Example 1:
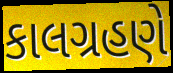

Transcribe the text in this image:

કાલગ્રહણે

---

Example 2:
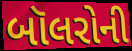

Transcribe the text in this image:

બૉલરોની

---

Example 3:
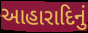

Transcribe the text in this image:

આહારાદિનું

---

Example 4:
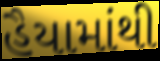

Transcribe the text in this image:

હૈયામાંથી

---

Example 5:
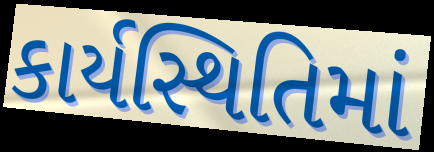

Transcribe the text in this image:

કાર્યસ્થિતિમાં